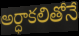
అర్ధాకలితోనే